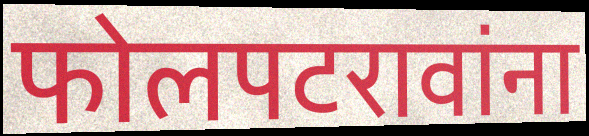
फोलपटरावांना